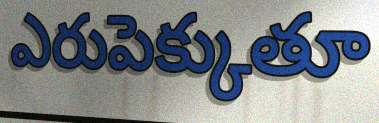
ఎరుపెక్కుతూ